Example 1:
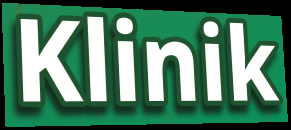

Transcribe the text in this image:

Klinik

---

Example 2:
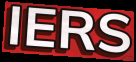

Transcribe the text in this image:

IERS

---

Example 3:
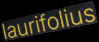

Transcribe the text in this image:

laurifolius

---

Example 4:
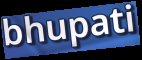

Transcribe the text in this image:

bhupati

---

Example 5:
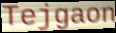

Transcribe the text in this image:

Tejgaon